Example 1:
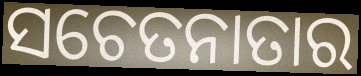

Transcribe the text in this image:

ସଚେତନାତାର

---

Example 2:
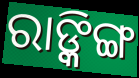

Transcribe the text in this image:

ରାଙ୍କିଙ୍ଗ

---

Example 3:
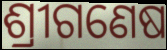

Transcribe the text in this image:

ଶ୍ରୀଗଣେଷ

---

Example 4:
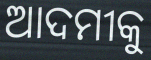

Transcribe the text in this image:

ଆଦମୀକୁ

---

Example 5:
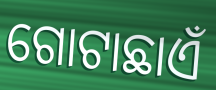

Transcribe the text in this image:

ଗୋଟାଛାଏଁ